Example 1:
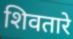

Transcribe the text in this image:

शिवतारे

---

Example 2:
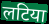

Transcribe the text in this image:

लटिया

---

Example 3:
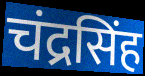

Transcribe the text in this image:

चंद्रसिंह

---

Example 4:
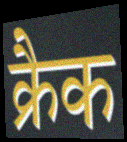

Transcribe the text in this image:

क्रैक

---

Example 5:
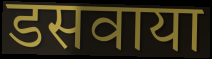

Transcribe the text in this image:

डसवाया